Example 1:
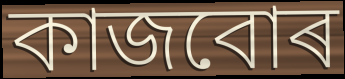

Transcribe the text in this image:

কাজবোৰ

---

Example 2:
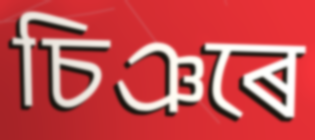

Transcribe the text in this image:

চিঞৰে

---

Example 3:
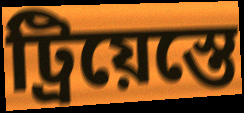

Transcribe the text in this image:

ট্ৰিয়েস্তে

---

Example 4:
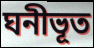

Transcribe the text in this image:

ঘনীভূত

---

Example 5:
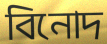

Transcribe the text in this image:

বিনোদ